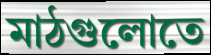
মাঠগুলোতে